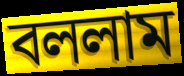
বললাম